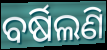
ବର୍ଷିଲଣି